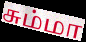
சும்மா